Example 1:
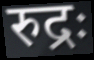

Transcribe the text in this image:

रुद्रः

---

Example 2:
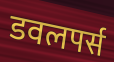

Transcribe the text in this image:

डवलपर्स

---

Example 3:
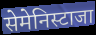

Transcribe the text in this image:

सेमेनिस्टाजा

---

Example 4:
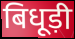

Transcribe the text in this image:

बिधूड़ी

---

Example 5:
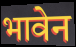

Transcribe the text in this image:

भावेन